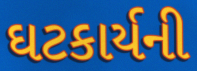
ઘટકાર્યની